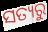
ସତ୍ୟରୁ